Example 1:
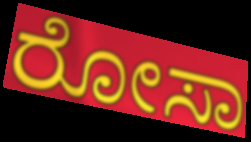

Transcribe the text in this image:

ರೋಸಾ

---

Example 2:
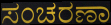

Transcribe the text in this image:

ಸಂಚರಣಾ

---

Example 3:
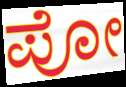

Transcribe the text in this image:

ಪೋ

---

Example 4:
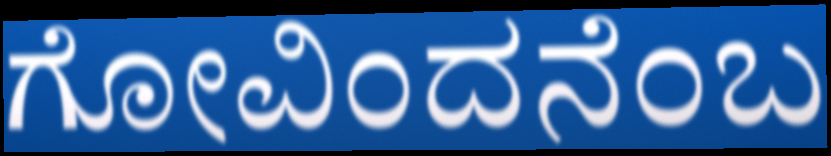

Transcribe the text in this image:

ಗೋವಿಂದನೆಂಬ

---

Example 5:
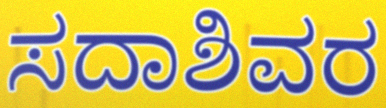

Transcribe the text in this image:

ಸದಾಶಿವರ